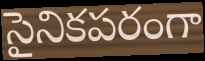
సైనికపరంగా